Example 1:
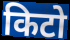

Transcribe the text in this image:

किटो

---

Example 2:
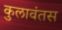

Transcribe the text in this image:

कुलावंतस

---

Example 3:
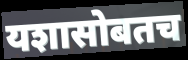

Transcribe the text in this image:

यशासोबतच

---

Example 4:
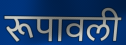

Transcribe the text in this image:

रूपावली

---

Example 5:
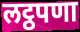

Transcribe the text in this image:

लट्ठपणा